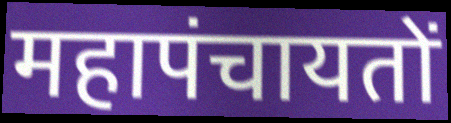
महापंचायतों